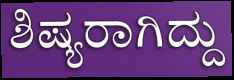
ಶಿಷ್ಯರಾಗಿದ್ದು